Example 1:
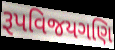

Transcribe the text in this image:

રૂપવિજયગણિ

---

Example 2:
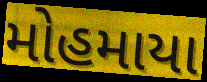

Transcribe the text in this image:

મોહમાયા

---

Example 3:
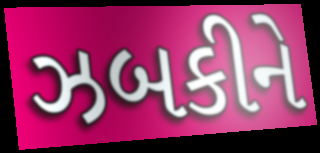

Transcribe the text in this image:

ઝબકીને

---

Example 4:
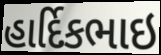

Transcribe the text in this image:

હાર્દિકભાઇ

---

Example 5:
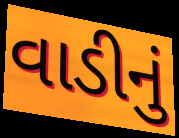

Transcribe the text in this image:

વાડીનું